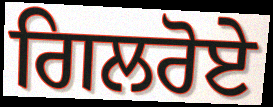
ਗਿਲਰੋਏ